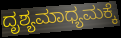
ದೃಶ್ಯಮಾಧ್ಯಮಕ್ಕೆ